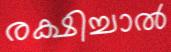
രക്ഷിച്ചാൽ